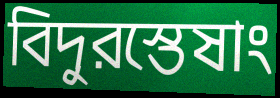
বিদুরস্তেষাং